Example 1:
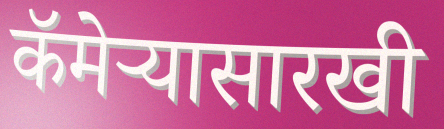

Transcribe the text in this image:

कॅमेऱ्यासारखी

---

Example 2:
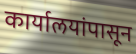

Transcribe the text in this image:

कार्यालयांपासून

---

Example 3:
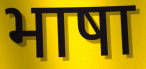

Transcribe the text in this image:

भाषा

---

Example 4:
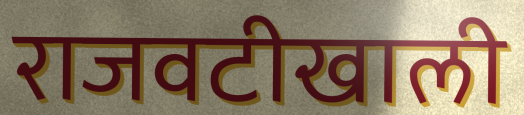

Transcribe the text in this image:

राजवटीखाली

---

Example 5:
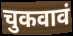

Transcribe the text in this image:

चुकवावं